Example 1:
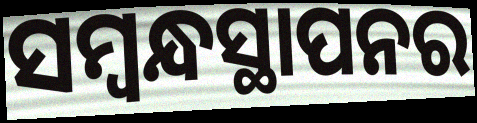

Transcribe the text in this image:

ସମ୍ବନ୍ଧସ୍ଥାପନର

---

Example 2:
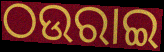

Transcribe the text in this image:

ଠଉରାଇ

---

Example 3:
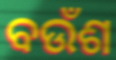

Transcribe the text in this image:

ବଉଁଶ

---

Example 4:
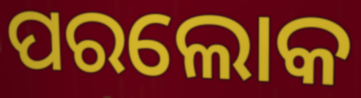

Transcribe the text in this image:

ପରଲୋକ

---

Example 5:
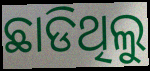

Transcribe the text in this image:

ଛାଡିଥିଲୁ